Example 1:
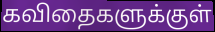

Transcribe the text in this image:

கவிதைகளுக்குள்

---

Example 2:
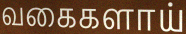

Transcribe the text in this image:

வகைகளாய்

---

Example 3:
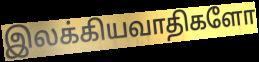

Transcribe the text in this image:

இலக்கியவாதிகளோ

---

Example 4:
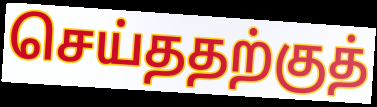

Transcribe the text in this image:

செய்ததற்குத்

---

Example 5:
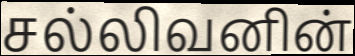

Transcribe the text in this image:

சல்லிவனின்